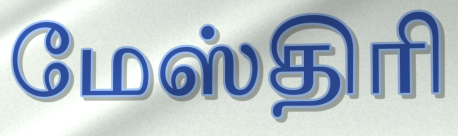
மேஸ்திரி